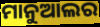
ମାନୁଆଲର